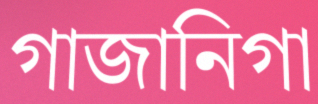
গাজানিগা